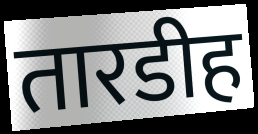
तारडीह